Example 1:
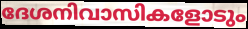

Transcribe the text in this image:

ദേശനിവാസികളോടും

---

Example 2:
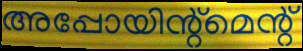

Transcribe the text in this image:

അപ്പോയിന്റ്മെന്റ്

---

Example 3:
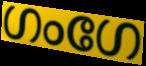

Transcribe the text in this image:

ഗംഗേ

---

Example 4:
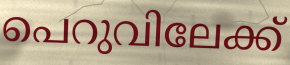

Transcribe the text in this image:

പെറുവിലേക്ക്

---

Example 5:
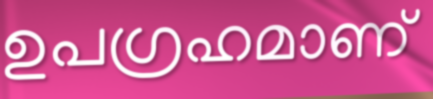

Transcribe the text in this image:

ഉപഗ്രഹമാണ്